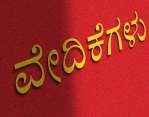
ವೇದಿಕೆಗಳು